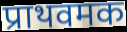
प्राथवमक